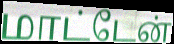
மாட்டேன்